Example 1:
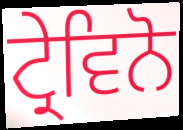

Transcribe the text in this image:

ਟ੍ਰੇਵਿਨੋ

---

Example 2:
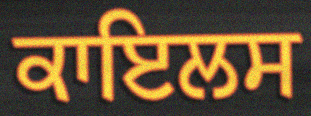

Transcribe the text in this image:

ਕਾਇਲਸ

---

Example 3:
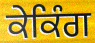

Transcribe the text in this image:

ਕੇਕਿੰਗ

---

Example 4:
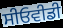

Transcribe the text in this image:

ਸੀਓਵੀਡੀ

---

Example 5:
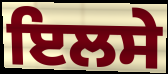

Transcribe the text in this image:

ਇਲਸੇ